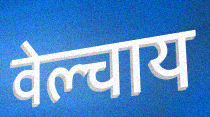
वेल्चाय